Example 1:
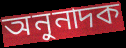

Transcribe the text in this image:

অনুনাদক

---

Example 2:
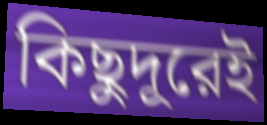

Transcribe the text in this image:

কিছুদূরেই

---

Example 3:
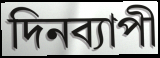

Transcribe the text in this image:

দিনব্যাপী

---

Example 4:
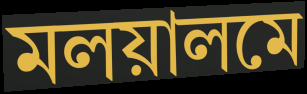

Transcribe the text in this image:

মলয়ালমে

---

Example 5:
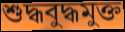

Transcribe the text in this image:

শুদ্ধবুদ্ধমুক্ত